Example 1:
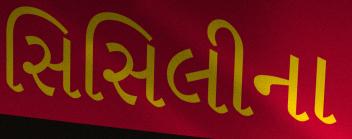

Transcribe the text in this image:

સિસિલીના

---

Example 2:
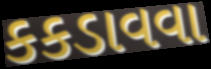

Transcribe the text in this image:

કકડાવવા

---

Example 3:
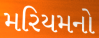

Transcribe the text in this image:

મરિયમનો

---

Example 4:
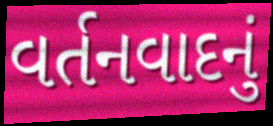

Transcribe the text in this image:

વર્તનવાદનું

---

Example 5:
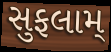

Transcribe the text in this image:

સુફલામ્